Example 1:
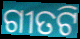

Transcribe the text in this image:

ଗୀତଟି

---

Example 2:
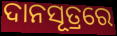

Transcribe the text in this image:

ଦାନସୂତ୍ରରେ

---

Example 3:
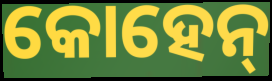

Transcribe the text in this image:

କୋହେନ୍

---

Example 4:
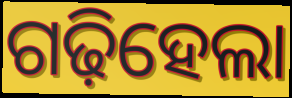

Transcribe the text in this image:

ଗଢ଼ିହେଲା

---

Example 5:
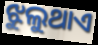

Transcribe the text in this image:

ଝୁଲୁଥାଏ